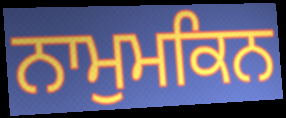
ਨਾਮੁਮਕਿਨ